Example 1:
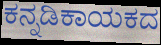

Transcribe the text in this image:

ಕನ್ನಡಿಕಾಯಕದ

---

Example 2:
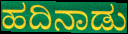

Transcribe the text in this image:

ಹದಿನಾಡು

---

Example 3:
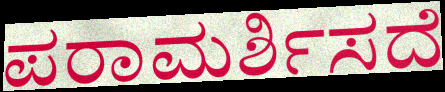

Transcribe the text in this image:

ಪರಾಮರ್ಶಿಸದೆ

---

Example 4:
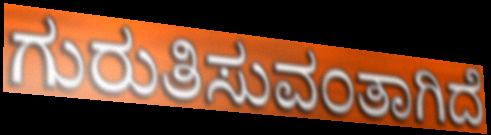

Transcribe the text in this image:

ಗುರುತಿಸುವಂತಾಗಿದೆ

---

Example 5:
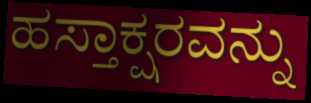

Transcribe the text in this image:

ಹಸ್ತಾಕ್ಷರವನ್ನು